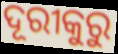
ଦୂରୀକୁରୁ